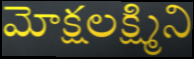
మోక్షలక్ష్మిని